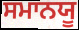
ਸਮਾਨਯੂ